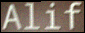
Alif